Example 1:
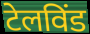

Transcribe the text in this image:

टेलविंड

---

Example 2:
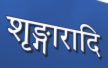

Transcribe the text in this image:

शृङ्गारादि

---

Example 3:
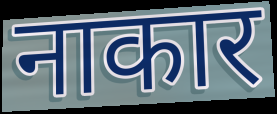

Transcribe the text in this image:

नाकार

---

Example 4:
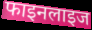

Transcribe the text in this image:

फाइनलाइज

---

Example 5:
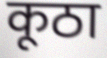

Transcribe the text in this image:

कूठा